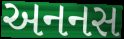
અનનસ